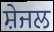
ਸ਼ੇਜਲ